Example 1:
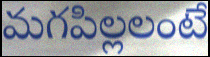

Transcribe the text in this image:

మగపిల్లలంటే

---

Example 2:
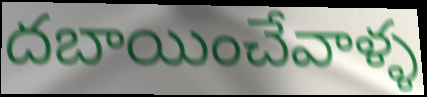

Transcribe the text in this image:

దబాయించేవాళ్ళ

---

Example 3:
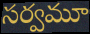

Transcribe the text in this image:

సర్వమూ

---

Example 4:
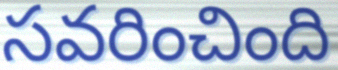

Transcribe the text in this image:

సవరించింది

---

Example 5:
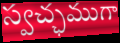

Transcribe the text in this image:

స్వచ్ఛముగా